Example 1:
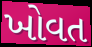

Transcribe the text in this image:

ખોવત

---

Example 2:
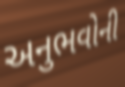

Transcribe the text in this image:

અનુભવોની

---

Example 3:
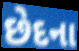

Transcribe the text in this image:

છેદના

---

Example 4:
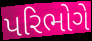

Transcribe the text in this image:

પરિભોગે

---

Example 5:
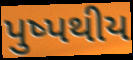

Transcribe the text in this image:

પુષ્પથીય